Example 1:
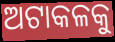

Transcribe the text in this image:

ଅଟାକଳକୁ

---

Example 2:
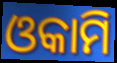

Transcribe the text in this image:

ଓକାମି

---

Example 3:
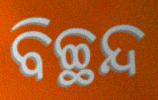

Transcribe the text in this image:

ବିଚ୍ଛନ୍ଦ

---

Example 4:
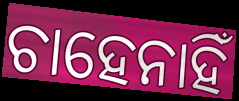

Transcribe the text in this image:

ଚାହେନାହିଁ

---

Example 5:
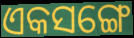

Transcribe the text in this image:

ଏକସଙ୍ଗେ